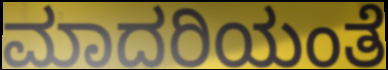
ಮಾದರಿಯಂತೆ